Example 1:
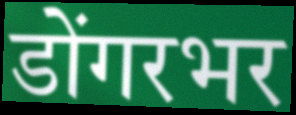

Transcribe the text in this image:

डोंगरभर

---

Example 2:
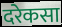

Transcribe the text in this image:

दरेकसा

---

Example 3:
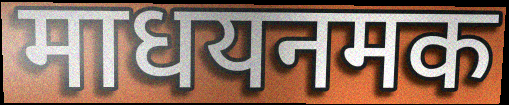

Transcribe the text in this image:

माधयनमक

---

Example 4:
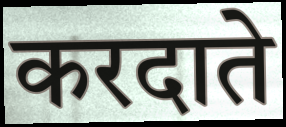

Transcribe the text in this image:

करदाते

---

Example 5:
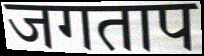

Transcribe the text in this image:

जगताप